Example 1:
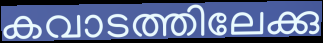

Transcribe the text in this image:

കവാടത്തിലേക്കു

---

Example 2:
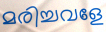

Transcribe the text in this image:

മരിച്ചവളേ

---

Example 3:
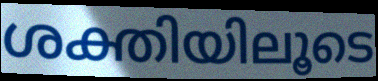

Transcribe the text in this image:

ശക്തിയിലൂടെ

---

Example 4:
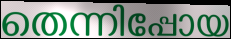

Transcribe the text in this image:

തെന്നിപ്പോയ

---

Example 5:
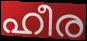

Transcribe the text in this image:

ഹീര